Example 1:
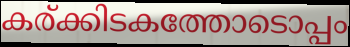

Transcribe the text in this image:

കര്ക്കിടകത്തോടൊപ്പം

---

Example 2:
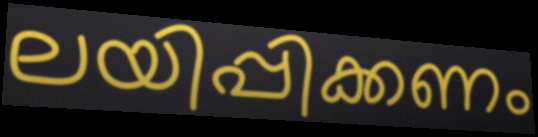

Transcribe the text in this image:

ലയിപ്പിക്കണം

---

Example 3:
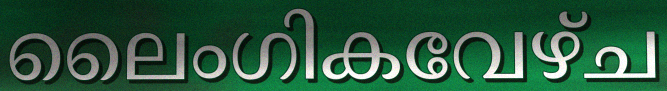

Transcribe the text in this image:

ലൈംഗികവേഴ്ച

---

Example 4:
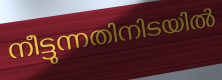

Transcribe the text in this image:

നീട്ടുന്നതിനിടയിൽ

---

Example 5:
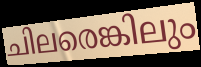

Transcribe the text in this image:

ചിലരെങ്കിലും